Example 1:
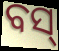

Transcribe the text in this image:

ବସ୍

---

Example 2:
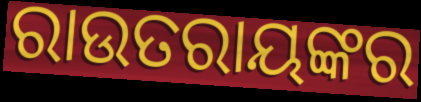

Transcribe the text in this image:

ରାଉତରାୟଙ୍କର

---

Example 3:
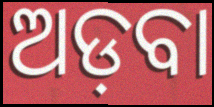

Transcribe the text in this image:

ଅଡ଼ବା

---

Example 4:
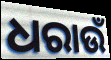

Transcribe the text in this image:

ଧରାଉଁ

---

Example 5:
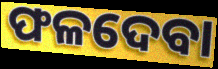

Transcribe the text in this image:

ଫଳଦେବା